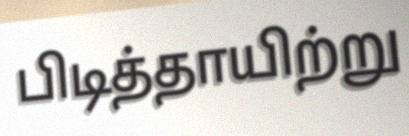
பிடித்தாயிற்று